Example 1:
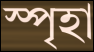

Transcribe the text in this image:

স্পৃহা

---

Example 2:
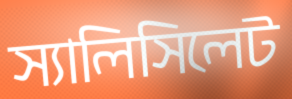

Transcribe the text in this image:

স্যালিসিলেট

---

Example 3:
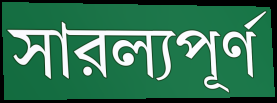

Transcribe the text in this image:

সারল্যপূর্ণ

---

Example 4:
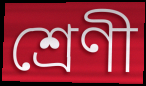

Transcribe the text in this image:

শ্রেণী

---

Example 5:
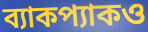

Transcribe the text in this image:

ব্যাকপ্যাকও